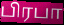
பிரபா